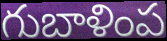
గుబాళింప